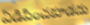
ఏడిపించకూడదు